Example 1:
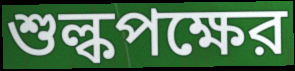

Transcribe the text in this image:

শুল্কপক্ষের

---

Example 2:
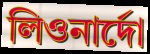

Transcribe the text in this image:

লিওনার্দো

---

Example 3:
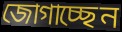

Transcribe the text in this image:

জোগাচ্ছেন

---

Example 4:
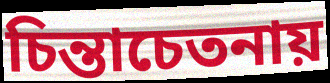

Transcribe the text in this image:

চিন্তাচেতনায়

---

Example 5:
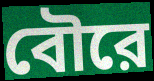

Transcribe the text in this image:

বৌরে